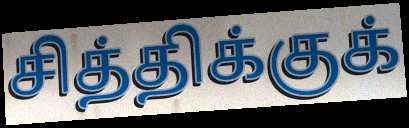
சித்திக்குக்